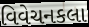
વિવેચનકલા